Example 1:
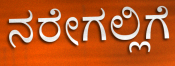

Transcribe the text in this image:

ನರೇಗಲ್ಲಿಗೆ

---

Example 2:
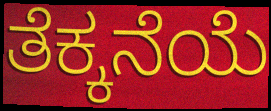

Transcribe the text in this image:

ತೆಕ್ಕನೆಯೆ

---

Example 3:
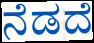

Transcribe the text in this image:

ನೆಡದೆ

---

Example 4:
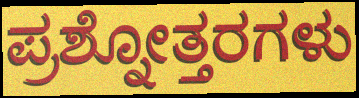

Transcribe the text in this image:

ಪ್ರಶ್ನೋತ್ತರಗಳು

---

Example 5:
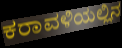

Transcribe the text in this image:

ಕರಾವಳಿಯಲ್ಲಿನ